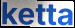
ketta